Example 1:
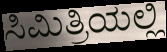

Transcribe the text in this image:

ಸಿಮಿತ್ರಿಯಲ್ಲಿ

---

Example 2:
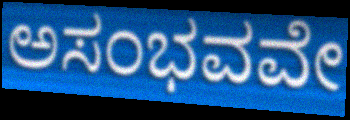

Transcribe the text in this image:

ಅಸಂಭವವೇ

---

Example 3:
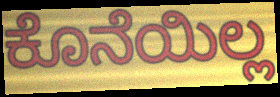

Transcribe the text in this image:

ಕೊನೆಯಿಲ್ಲ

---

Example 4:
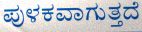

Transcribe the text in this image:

ಪುಳಕವಾಗುತ್ತದೆ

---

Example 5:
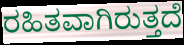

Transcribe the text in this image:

ರಹಿತವಾಗಿರುತ್ತದೆ